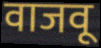
वाजवू